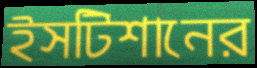
ইসটিশানের